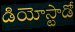
డియోస్టాడో